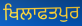
ਖਿਲਾਫਤਪੁਰ